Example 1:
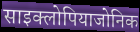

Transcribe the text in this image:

साइक्लोपियाजोनिक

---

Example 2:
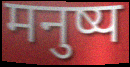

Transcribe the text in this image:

मनुष्य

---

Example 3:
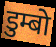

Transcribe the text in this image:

डुम्बो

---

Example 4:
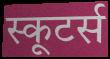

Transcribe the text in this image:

स्कूटर्स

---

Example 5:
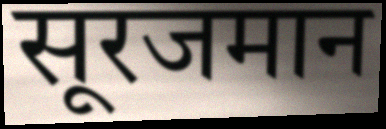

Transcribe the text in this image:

सूरजमान